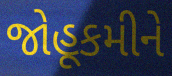
જોહૂકમીને